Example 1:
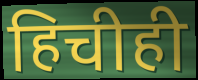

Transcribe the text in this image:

हिचीही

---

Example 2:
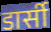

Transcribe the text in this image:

डार्सी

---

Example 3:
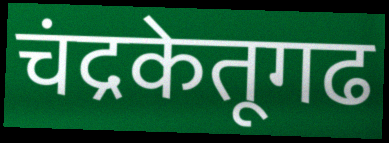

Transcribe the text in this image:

चंद्रकेतूगढ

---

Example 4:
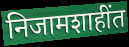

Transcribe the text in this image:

निजामशाहींत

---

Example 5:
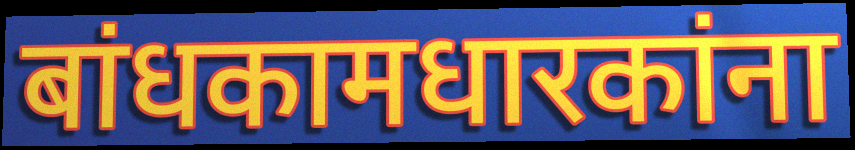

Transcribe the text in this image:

बांधकामधारकांना